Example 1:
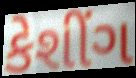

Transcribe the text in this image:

કેશીંગ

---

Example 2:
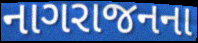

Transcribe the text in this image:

નાગરાજનના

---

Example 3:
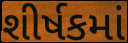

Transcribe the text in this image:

શીર્ષકમાં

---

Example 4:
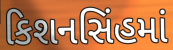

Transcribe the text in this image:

કિશનસિંહમાં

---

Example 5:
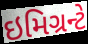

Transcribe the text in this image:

ઇમિગ્રન્ટે